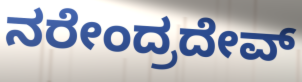
ನರೇಂದ್ರದೇವ್